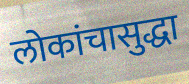
लोकांचासुद्धा